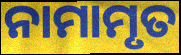
ନାମାମୃତ